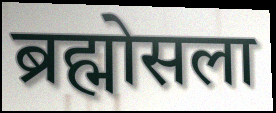
ब्रह्मोसला